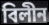
বিলীন